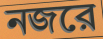
নজরে